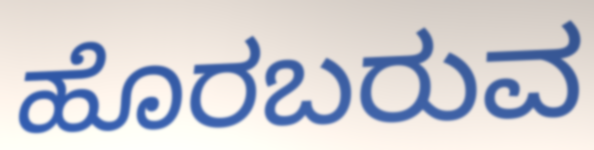
ಹೊರಬರುವ